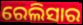
ରେଲିସାର